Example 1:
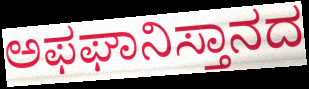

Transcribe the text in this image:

ಅಫಘಾನಿಸ್ತಾನದ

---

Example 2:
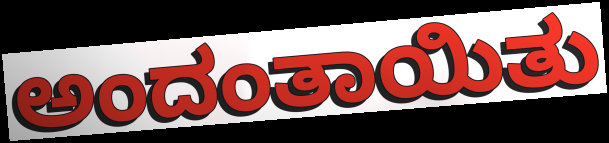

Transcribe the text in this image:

ಅಂದಂತಾಯಿತು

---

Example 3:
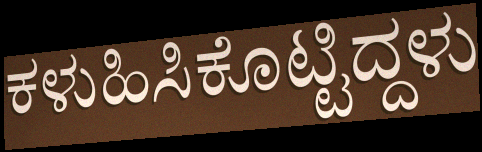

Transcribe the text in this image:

ಕಳುಹಿಸಿಕೊಟ್ಟಿದ್ದಳು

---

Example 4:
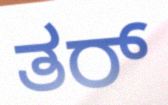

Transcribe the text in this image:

ತರ್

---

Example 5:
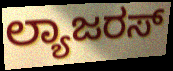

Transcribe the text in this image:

ಲ್ಯಾಜರಸ್